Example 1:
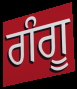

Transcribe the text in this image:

ਗੰਗੂ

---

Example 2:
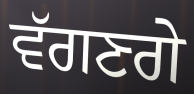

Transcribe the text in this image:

ਵੱਗਣਗੇ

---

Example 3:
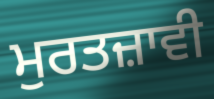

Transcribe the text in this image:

ਮੁਰਤਜ਼ਾਵੀ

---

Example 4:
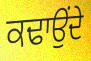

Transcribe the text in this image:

ਕਢਾਉਂਦੇ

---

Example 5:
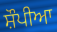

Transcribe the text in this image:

ਸ਼ੌਪੀਆ